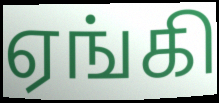
ஏங்கி